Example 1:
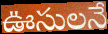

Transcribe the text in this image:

ఊసులనే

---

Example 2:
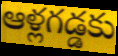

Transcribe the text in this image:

ఆళ్లగడ్డకు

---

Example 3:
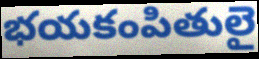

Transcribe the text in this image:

భయకంపితులై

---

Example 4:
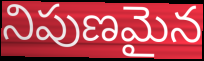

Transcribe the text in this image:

నిపుణమైన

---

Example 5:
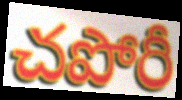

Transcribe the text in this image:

చపోరీ